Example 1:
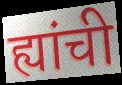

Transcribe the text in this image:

ह्यांची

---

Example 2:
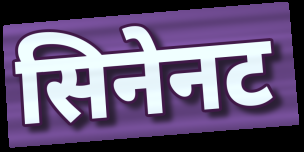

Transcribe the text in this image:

सिनेनट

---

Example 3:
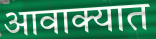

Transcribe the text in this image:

आवाक्‍यात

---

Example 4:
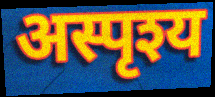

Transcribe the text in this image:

अस्पृश्य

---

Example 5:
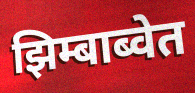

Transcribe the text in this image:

झिम्बाब्वेत